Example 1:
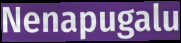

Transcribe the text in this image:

Nenapugalu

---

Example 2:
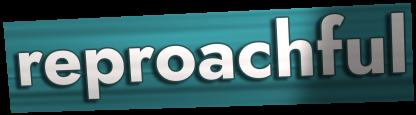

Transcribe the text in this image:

reproachful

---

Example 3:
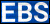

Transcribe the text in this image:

EBS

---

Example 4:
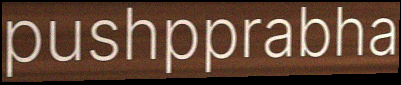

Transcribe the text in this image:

pushpprabha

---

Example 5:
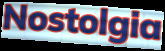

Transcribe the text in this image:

Nostolgia